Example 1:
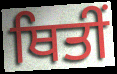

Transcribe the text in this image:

ਥਿਤੀਂ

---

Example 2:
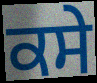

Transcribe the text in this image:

ਕਸੇ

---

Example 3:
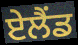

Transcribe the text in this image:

ਏਲੈਂਡ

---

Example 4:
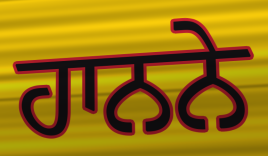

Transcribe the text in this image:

ਹਾਨਨੇ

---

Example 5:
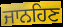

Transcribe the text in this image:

ਜਾਨਹਿਣ